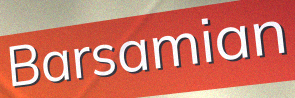
Barsamian